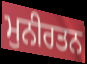
ਮੁਨੀਰਤਨ